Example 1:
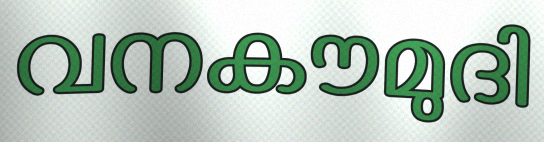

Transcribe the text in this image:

വനകൗമുദി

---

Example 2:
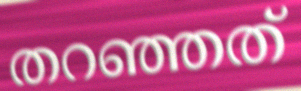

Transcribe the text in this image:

തറഞ്ഞത്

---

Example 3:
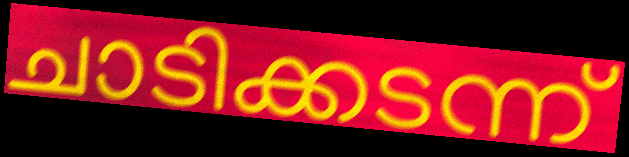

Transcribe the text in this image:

ചാടിക്കടന്ന്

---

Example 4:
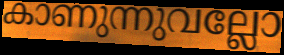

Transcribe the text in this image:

കാണുന്നുവല്ലോ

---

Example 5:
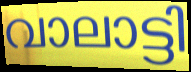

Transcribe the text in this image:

വാലാട്ടി